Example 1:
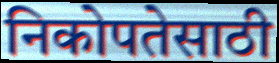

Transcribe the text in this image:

निकोपतेसाठी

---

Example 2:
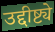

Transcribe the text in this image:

उद्दीष्ट्ये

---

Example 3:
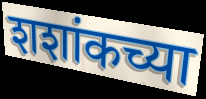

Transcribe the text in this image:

शशांकच्या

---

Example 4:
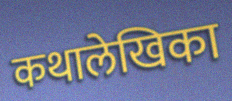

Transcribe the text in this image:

कथालेखिका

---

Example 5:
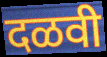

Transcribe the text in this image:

दळवी